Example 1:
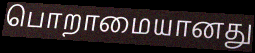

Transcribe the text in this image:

பொறாமையானது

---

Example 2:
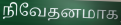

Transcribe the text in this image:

நிவேதனமாக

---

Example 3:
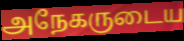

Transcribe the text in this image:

அநேகருடைய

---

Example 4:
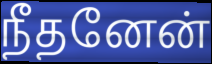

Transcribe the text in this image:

நீதனேன்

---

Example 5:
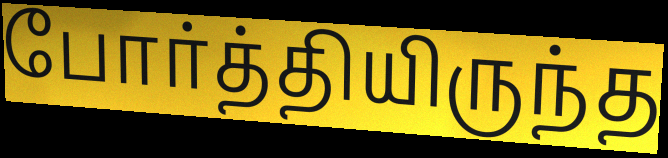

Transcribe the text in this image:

போர்த்தியிருந்த